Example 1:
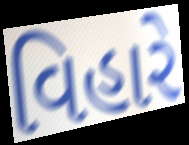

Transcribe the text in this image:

વિહારે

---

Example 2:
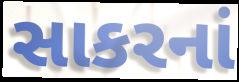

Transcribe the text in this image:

સાકરનાં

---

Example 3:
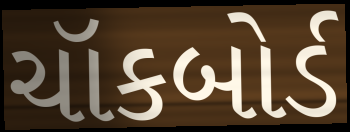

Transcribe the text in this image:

ચૉકબોર્ડ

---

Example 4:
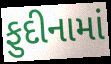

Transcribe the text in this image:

ફુદીનામાં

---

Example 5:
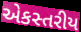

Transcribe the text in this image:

એકસ્તરીય